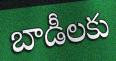
బాడీలకు